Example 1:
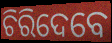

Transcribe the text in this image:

ଚିରିଦେବେ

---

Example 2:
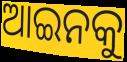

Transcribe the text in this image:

ଆଇନକୁ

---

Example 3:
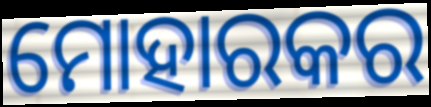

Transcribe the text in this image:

ମୋହାରକର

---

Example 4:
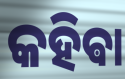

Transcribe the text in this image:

କହିଵା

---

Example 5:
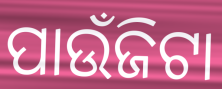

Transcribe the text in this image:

ପାଉଁଜିଟା